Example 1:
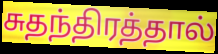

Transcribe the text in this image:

சுதந்திரத்தால்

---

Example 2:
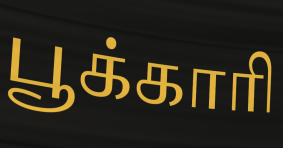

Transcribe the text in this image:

பூக்காரி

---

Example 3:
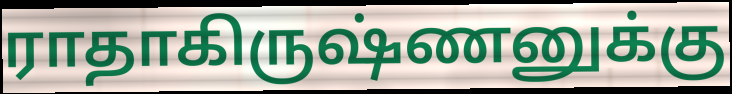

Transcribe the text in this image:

ராதாகிருஷ்ணனுக்கு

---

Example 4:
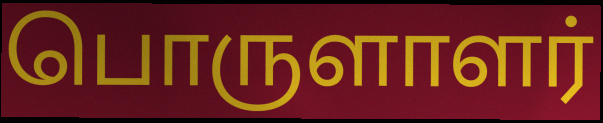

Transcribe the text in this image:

பொருளாளர்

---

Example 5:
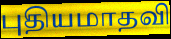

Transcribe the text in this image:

புதியமாதவி